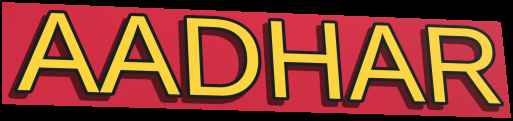
AADHAR